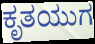
ಕೃತಯುಗ